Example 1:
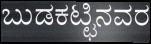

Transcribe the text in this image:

ಬುಡಕಟ್ಟಿನವರ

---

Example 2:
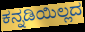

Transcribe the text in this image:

ಕನ್ನಡಿಯಿಲ್ಲದ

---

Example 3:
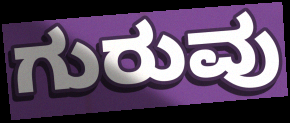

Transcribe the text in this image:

ಗುರುವು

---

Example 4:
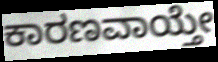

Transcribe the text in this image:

ಕಾರಣವಾಯ್ತೇ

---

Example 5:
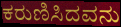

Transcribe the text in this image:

ಕರುಣಿಸಿದವನು